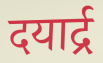
दयार्द्र